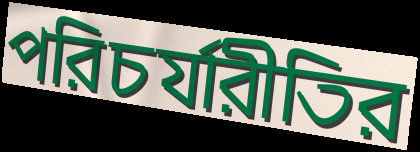
পরিচর্যারীতির